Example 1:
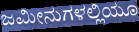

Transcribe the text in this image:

ಜಮೀನುಗಳಲ್ಲಿಯೂ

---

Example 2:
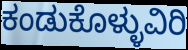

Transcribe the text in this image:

ಕಂಡುಕೊಳ್ಳುವಿರಿ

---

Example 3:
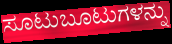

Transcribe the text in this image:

ಸೂಟುಬೂಟುಗಳನ್ನು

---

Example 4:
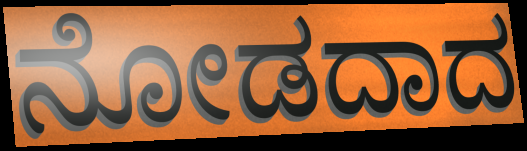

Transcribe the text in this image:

ನೋಡದಾದ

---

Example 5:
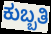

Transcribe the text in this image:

ಕುಬ್ಬತಿ